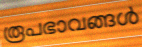
രൂപഭാവങ്ങൾ